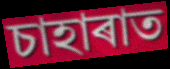
চাহাৰাত